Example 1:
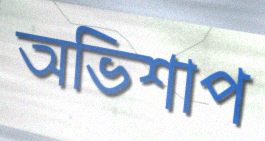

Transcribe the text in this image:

অভিশাপ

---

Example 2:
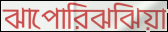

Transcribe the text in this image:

ঝাপোরিঝঝিয়া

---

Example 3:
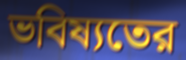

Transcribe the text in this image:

ভবিষ্যতের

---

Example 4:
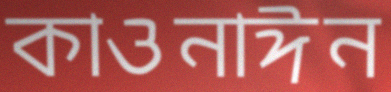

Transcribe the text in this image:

কাওনাঈন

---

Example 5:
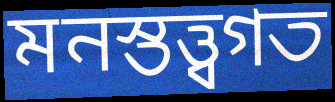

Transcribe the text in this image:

মনস্তত্ত্বগত